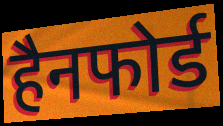
हैनफोर्ड